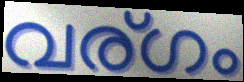
വര്ഗം